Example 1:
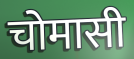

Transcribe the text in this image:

चोमासी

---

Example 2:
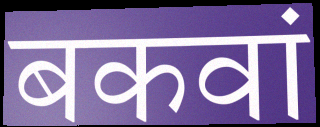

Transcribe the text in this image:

बकवां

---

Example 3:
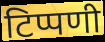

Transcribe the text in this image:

टिप्‍पणी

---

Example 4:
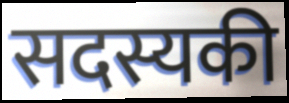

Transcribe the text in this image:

सदस्यकी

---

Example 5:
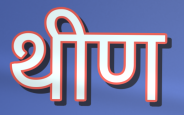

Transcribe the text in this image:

थीण